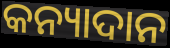
କନ୍ୟାଦାନ